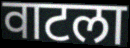
वाटला